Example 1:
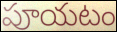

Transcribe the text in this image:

పూయటం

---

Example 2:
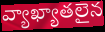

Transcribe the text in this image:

వ్యాఖ్యాతలైన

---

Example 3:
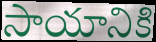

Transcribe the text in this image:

సాయానికి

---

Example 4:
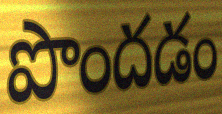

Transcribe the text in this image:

పొందడం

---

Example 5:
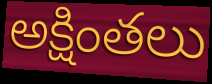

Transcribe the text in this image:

అక్షింతలు